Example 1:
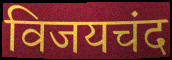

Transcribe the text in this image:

विजयचंद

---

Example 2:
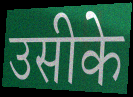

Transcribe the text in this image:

उसीके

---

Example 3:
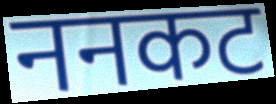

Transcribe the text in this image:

ननकट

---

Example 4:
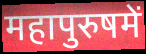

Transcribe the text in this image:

महापुरुषमें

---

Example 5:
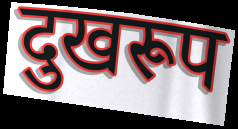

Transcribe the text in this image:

दुखरूप